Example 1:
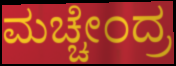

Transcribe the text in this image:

ಮಚ್ಚೇಂದ್ರ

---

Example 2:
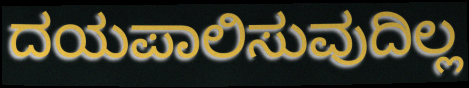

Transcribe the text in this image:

ದಯಪಾಲಿಸುವುದಿಲ್ಲ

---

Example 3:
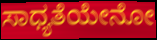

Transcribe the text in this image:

ಸಾಧ್ಯತೆಯೇನೋ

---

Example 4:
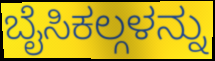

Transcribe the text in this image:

ಬೈಸಿಕಲ್ಗಳನ್ನು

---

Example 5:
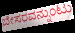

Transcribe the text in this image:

ಬೇಸರವನ್ನುಂಟು